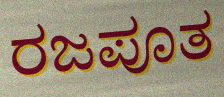
ರಜಪೂತ